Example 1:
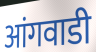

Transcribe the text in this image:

आंगवाडी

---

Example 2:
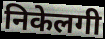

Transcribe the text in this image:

निकेलगी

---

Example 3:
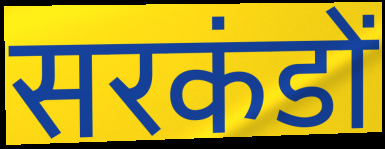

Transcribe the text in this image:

सरकंडों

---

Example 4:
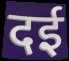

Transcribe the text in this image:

दई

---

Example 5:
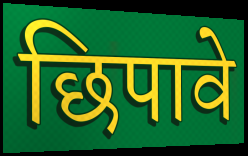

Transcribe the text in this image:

छिपावे